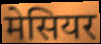
मेसियर